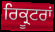
ਰਿਕ੍ਰੂਟਰਾਂ